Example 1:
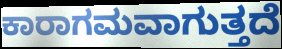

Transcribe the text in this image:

ಕಾರಾಗಮವಾಗುತ್ತದೆ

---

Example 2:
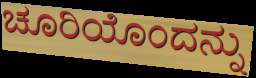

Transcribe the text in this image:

ಚೂರಿಯೊಂದನ್ನು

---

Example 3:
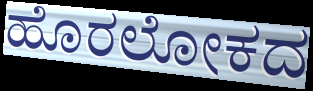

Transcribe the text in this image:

ಹೊರಲೋಕದ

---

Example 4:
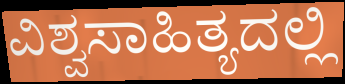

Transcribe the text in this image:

ವಿಶ್ವಸಾಹಿತ್ಯದಲ್ಲಿ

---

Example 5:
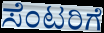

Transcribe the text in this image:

ಸೆಂಟರಿಗೆ